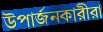
উপার্জনকারীরা